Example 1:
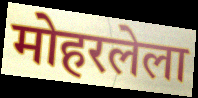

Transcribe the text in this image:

मोहरलेला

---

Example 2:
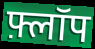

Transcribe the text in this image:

फ़्लॉप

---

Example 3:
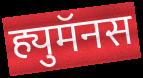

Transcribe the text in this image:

ह्युमॅनस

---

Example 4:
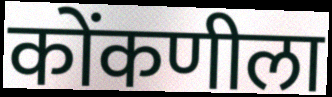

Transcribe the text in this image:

कोंकणीला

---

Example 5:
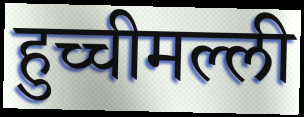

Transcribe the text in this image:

हुच्चीमल्ली